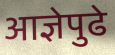
आज्ञेपुढे